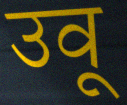
उवू